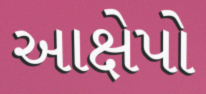
આક્ષેપો